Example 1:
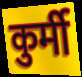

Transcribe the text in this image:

कुर्मी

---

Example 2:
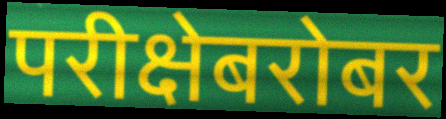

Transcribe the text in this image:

परीक्षेबरोबर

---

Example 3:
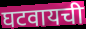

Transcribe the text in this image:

घटवायची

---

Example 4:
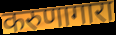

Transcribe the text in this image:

करुणागारा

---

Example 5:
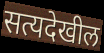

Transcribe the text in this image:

सत्यदेखील